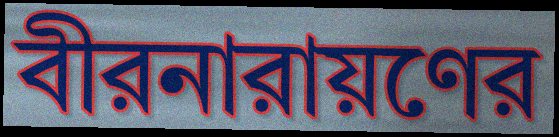
বীরনারায়ণের